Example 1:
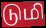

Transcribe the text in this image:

டுமி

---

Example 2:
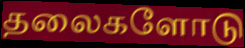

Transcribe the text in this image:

தலைகளோடு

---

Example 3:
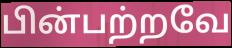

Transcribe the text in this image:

பின்பற்றவே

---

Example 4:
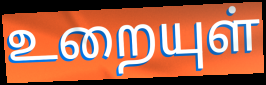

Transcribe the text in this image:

உறையுள்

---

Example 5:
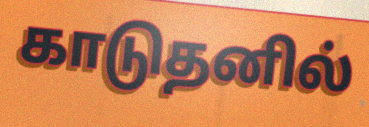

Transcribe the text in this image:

காடுதனில்